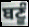
ਬਣੂੰ